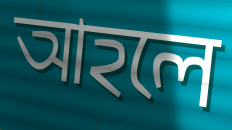
আহলে